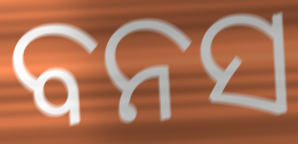
ବନସ